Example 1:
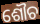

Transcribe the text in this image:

ଶୌଚ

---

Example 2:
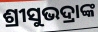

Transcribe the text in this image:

ଶ୍ରୀସୁଭଦ୍ରାଙ୍କ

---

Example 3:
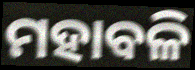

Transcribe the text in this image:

ମହାବଳି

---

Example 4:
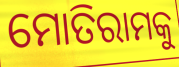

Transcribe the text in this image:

ମୋତିରାମକୁ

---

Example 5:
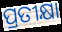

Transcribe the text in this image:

ପ୍ରତୀକ୍ଷା